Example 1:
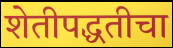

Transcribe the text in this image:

शेतीपद्धतीचा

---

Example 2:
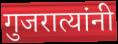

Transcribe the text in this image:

गुजरात्यांनी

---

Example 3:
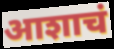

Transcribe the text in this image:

आशाचं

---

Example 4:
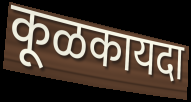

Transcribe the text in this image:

कूळकायदा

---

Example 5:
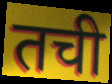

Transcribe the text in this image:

तची